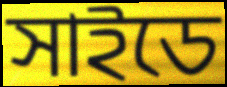
সাইডে